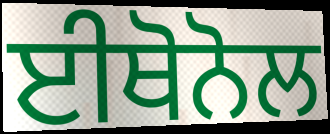
ਈਥੋਨੋਲ